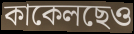
কাকেলছেও